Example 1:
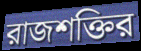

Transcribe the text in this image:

রাজশক্তির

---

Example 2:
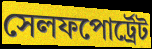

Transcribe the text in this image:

সেলফপোর্ট্রেট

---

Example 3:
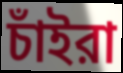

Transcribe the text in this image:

চাঁইরা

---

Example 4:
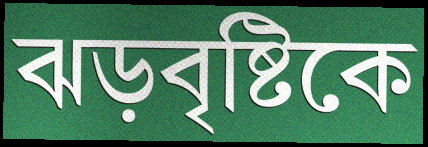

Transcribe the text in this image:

ঝড়বৃষ্টিকে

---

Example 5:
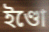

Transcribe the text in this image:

ইণ্ডো